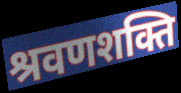
श्रवणशक्ति